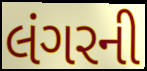
લંગરની